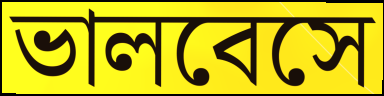
ভালবেসে